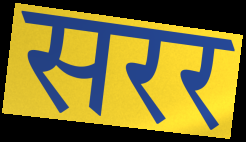
सरर